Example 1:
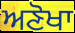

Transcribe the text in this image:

ਅਣੋਖਾ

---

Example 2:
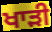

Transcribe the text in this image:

ਖਾਡ਼ੀ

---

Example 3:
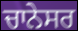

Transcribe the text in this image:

ਚਾਨੇਸਰ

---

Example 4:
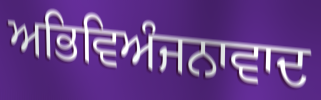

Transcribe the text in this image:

ਅਭਿਵਿਅੰਜਨਾਵਾਦ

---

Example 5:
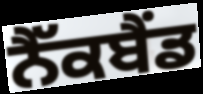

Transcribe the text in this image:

ਨੈੱਕਬੈਂਡ